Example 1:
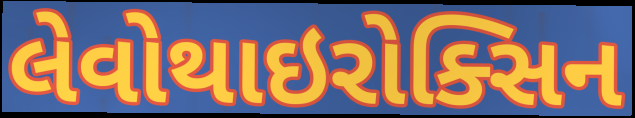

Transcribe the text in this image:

લેવોથાઇરોક્સિન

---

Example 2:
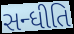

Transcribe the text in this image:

સન્ધીતિ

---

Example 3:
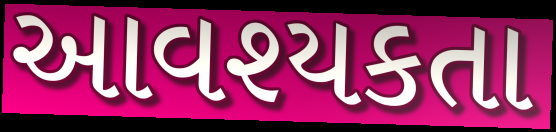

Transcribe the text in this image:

આવશ્યકતા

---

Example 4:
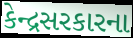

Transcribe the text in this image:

કેન્દ્રસરકારના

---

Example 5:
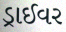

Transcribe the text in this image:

ડ્રાઈવર